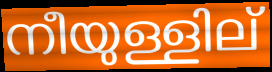
നീയുള്ളില്